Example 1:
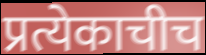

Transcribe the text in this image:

प्रत्येकाचीच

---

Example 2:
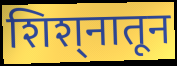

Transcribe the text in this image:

शिश्नातून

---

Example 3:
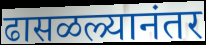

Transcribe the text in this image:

ढासळल्यानंतर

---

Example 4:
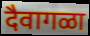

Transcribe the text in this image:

दैवागळा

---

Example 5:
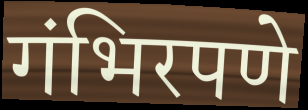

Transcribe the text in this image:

गंभिरपणे